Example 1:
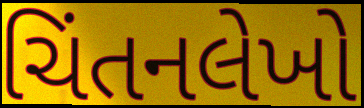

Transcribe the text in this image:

ચિંતનલેખો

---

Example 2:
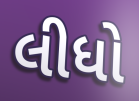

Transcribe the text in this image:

લીધો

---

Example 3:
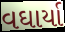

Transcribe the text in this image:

વઘાર્યા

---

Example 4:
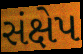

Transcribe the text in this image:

સંક્ષેપ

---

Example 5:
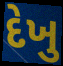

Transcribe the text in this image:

દેખુ